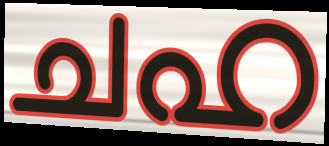
ചഹ